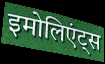
इमोलिएंट्स